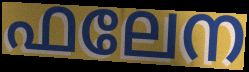
ഫലേന